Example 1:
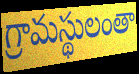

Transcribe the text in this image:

గ్రామస్థులంతా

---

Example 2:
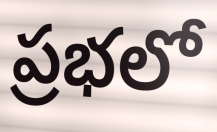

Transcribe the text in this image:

ప్రభలో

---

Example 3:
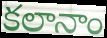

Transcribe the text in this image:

కలానాం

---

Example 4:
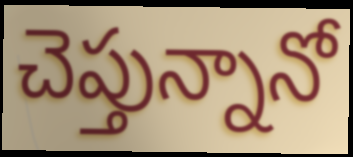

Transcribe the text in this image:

చెప్తున్నానో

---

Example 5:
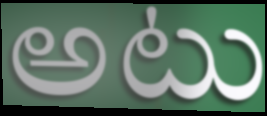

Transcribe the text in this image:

అటు